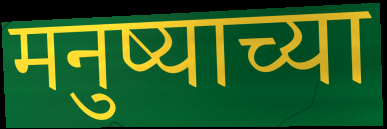
मनुष्याच्या